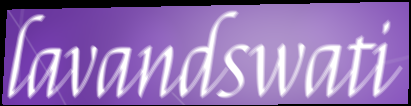
lavandswati